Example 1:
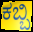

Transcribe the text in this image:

ಕಬ್ಬಿ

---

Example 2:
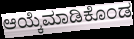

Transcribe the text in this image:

ಆಯ್ಕೆಮಾಡಿಕೊಂಡ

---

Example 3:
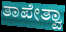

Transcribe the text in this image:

ತಾಪೇತ್ವಾ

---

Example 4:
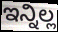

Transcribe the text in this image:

ಇನ್ನಿಲ್ಲ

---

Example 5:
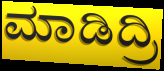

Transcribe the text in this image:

ಮಾಡಿದ್ರಿ